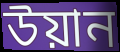
উয়ান